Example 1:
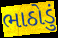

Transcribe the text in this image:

ભાઠોડું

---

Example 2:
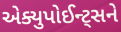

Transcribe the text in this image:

એક્યુપોઈન્ટ્સને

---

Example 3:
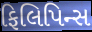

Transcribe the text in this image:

ફિલિપિન્સ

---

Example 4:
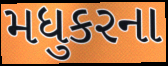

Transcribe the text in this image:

મધુકરના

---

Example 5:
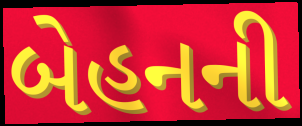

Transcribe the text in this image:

બેહનની